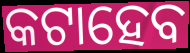
କଟାହେବ